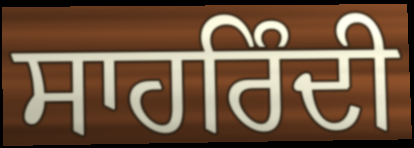
ਸਾਹਰਿੰਦੀ